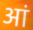
आं